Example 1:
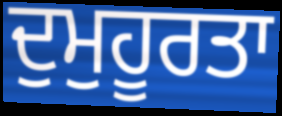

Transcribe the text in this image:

ਦੁਮੁਹੂਰਤਾ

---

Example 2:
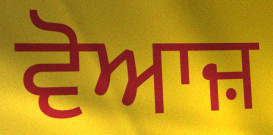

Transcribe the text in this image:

ਵੋਆਜ਼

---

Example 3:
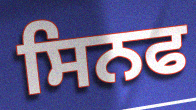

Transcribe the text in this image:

ਸਿਨਫ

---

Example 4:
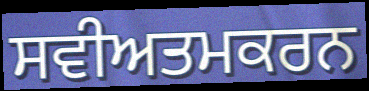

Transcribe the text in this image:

ਸਵੀਅਤਮਕਰਨ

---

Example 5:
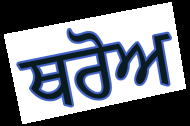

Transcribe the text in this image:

ਥਰੋਅ